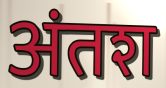
अंतश